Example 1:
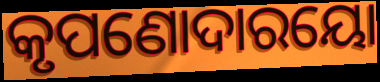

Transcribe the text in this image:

କୃପଣୋଦାରୟୋ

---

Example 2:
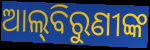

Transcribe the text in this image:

ଆଲ୍‌ବିରୁଣୀଙ୍କ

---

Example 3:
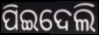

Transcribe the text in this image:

ପିଇଦେଲି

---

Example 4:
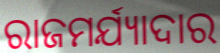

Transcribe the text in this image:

ରାଜମର୍ଯ୍ୟାଦାର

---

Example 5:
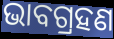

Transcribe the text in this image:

ଭାବଗ୍ରହଣ